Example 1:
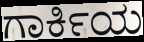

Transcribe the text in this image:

ಗಾರ್ಕಿಯ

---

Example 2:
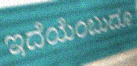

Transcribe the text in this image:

ಇದೆಯೆಂಬುದೂ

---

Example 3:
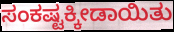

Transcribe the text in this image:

ಸಂಕಷ್ಟಕ್ಕೀಡಾಯಿತು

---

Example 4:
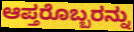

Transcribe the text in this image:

ಆಪ್ತರೊಬ್ಬರನ್ನು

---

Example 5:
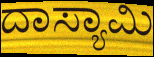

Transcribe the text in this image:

ದಾಸ್ಯಾಮಿ